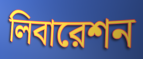
লিবারেশন